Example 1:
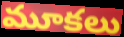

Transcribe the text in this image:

మూకలు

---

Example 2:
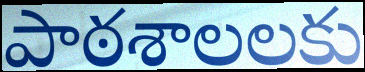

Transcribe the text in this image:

పాఠశాలలకు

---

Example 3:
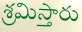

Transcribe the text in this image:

శ్రమిస్తారు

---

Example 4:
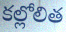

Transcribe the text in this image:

కల్లోలిత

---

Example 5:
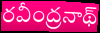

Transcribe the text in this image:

రవీంద్రనాథ్